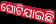
ଘୋଟିଯାଇଛି